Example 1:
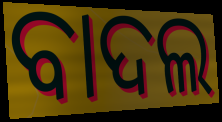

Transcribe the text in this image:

ବାଦଲ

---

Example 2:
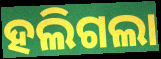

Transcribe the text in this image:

ହଲିଗଲା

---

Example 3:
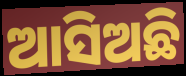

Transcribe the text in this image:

ଆସିଅଛି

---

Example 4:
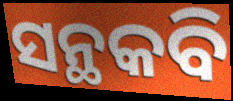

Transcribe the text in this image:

ସନ୍ଥକବି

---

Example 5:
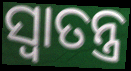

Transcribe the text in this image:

ସ୍ୱାତନ୍ତ୍ର